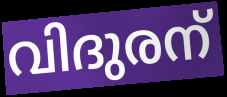
വിദുരന്